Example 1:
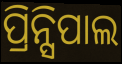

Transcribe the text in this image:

ପ୍ରିନ୍ସିପାଲ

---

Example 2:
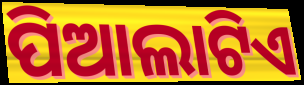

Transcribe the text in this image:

ପିଆଲାଟିଏ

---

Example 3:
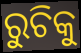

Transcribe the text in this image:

ରୁଚିକୁ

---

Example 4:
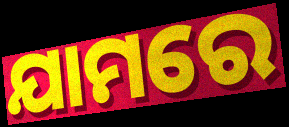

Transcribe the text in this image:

ଯାମରେ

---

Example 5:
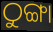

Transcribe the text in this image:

ଠୁଙ୍ଗା